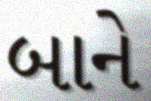
બાને